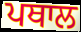
ਪਥਾਲ